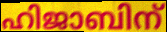
ഹിജാബിന്